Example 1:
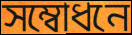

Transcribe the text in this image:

সম্বোধনে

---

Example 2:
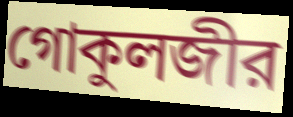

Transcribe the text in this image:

গোকুলজীর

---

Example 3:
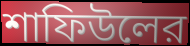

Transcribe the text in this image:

শাফিউলের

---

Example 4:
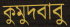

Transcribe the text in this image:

কুমুদবাবু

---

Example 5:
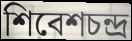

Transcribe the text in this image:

শিবেশচন্দ্র